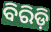
ବିରିଡ଼ି